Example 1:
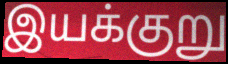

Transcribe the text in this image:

இயக்குறு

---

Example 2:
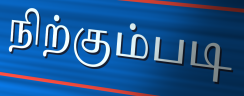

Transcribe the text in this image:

நிற்கும்படி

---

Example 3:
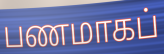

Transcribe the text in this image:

பணமாகப்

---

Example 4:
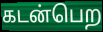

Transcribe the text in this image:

கடன்பெற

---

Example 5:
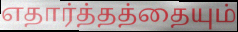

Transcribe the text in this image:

எதார்த்தத்தையும்